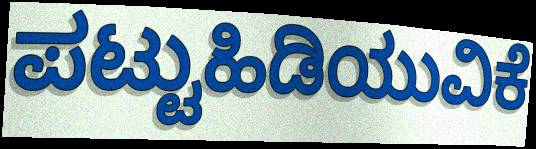
ಪಟ್ಟುಹಿಡಿಯುವಿಕೆ